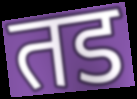
तड